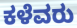
ಕಳೆವರು